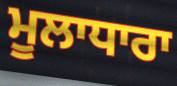
ਮੂਲਾਧਾਰਾ